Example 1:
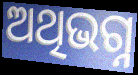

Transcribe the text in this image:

ଅଥିଭଗ୍ନ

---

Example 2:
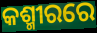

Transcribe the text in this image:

କଶ୍ମୀରରେ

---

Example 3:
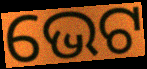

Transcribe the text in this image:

ଭେଟ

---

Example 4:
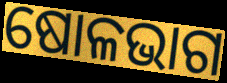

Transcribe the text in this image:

ଷୋଳଭାଗ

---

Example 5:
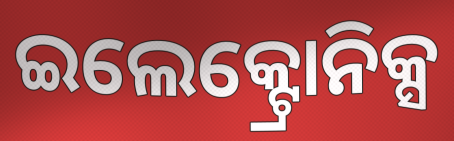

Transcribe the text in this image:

ଇଲେକ୍ଟ୍ରୋନିକ୍ସ